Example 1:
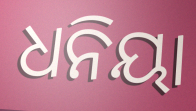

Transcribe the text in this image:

ଧନିୟା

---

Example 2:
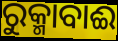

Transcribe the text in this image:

ରୁକ୍ମାବାଈ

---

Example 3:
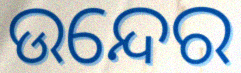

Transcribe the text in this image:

ଉନ୍ଦେର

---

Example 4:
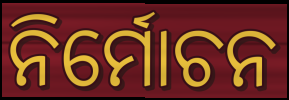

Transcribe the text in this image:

ନିର୍ମୋଚନ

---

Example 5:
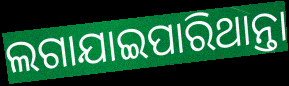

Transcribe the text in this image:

ଲଗାଯାଇପାରିଥାନ୍ତା